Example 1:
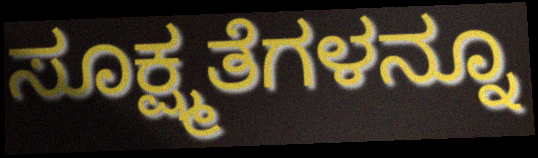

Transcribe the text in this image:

ಸೂಕ್ಷ್ಮತೆಗಳನ್ನೂ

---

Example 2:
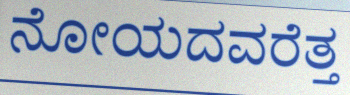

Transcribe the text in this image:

ನೋಯದವರೆತ್ತ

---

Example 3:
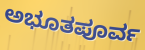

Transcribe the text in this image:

ಅಭೂತಪೂರ್ವ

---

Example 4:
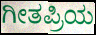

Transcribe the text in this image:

ಗೀತಪ್ರಿಯ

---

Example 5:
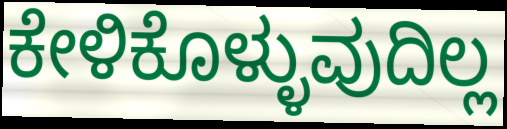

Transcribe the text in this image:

ಕೇಳಿಕೊಳ್ಳುವುದಿಲ್ಲ